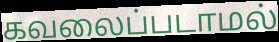
கவலைப்படாமல்